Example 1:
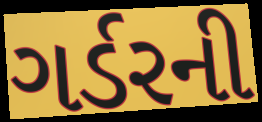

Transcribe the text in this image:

ગર્ડરની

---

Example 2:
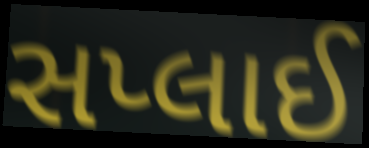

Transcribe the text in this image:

સપ્લાઈ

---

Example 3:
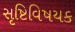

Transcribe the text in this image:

સૃષ્ટિવિષયક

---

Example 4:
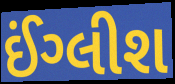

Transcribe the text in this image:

ઈંગ્લીશ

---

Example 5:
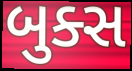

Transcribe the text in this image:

બુક્સ